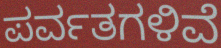
ಪರ್ವತಗಳಿವೆ